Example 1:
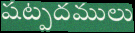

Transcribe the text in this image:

షట్పదములు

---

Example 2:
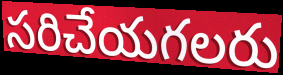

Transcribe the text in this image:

సరిచేయగలరు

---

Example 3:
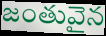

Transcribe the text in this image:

జంతువైన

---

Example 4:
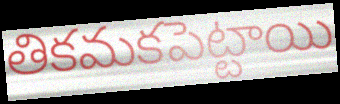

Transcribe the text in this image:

తికమకపెట్టాయి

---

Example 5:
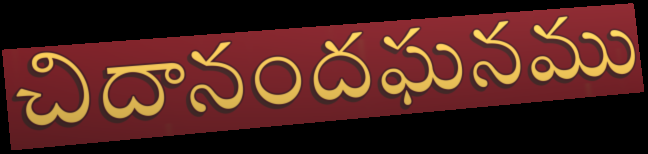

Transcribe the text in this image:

చిదానందఘనము